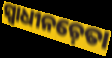
ସ୍ୱାଧୀନଚ଼େତା